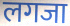
लगजा